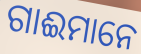
ଗାଈମାନେ